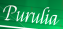
Purulia